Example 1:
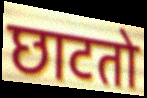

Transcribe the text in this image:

छाटतो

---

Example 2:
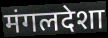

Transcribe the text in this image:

मंगलदेशा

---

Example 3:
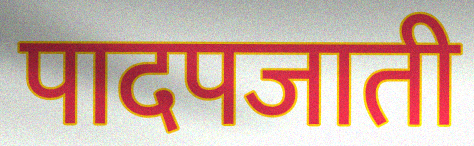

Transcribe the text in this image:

पादपजाती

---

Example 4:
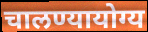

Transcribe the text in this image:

चालण्यायोग्य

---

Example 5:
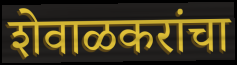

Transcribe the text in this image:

शेवाळकरांचा